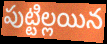
పుట్టిల్లయిన